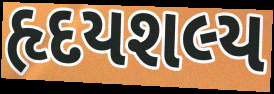
હૃદયશલ્ય